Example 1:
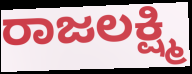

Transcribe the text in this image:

ರಾಜಲಕ್ಷ್ಮಿ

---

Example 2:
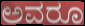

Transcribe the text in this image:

ಅವರೂ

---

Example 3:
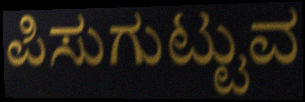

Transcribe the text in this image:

ಪಿಸುಗುಟ್ಟುವ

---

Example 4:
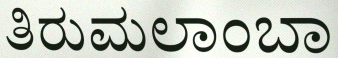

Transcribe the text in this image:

ತಿರುಮಲಾಂಬಾ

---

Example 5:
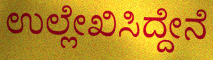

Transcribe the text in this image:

ಉಲ್ಲೇಖಿಸಿದ್ದೇನೆ